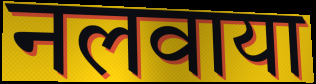
नलवाया